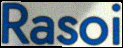
Rasoi